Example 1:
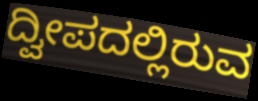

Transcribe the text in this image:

ದ್ವೀಪದಲ್ಲಿರುವ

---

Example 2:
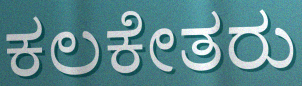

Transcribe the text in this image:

ಕಲಕೇತರು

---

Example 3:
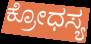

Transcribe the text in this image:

ಕ್ರೋಧಸ್ಯ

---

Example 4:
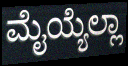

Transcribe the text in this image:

ಮೈಯ್ಯೆಲ್ಲಾ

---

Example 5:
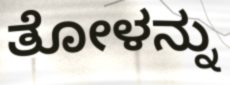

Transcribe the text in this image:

ತೋಳನ್ನು